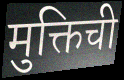
मुक्तिची